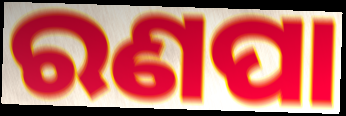
ରଣପା